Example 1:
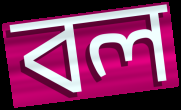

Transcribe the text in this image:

বল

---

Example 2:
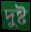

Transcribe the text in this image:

দুষ্ট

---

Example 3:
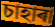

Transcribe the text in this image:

চাহাৰা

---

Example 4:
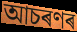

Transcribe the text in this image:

আচৰণৰ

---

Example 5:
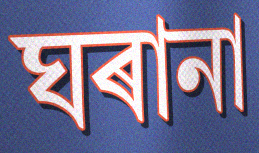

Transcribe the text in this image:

ঘৰানা